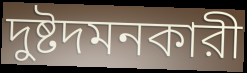
দুষ্টদমনকারী